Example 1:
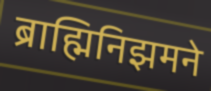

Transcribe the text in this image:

ब्राह्मिनिझमने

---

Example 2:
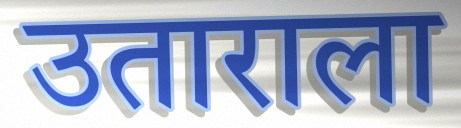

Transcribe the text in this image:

उताराला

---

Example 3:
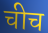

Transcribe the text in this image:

चीच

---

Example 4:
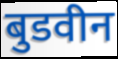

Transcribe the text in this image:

बुडवीन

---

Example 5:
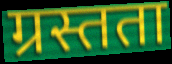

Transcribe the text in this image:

ग्रस्तता